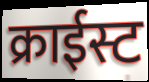
क्राईस्ट